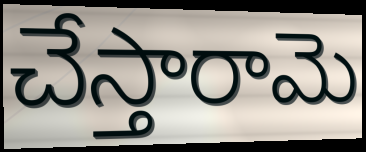
చేస్తారామె